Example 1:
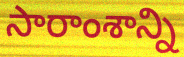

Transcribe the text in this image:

సారాంశాన్ని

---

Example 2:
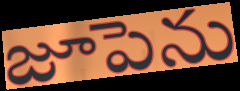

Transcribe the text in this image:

జూపెను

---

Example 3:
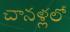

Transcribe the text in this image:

చానళ్లలో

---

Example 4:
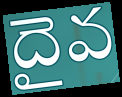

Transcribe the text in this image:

దైవ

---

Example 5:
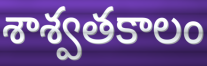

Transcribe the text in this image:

శాశ్వతకాలం